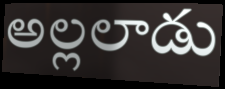
అల్లలాడు